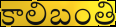
కాలిబంతి